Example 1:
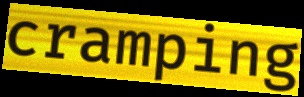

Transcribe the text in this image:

cramping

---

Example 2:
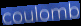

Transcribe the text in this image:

coulomb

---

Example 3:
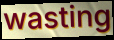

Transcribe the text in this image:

wasting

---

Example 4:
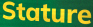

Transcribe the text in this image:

Stature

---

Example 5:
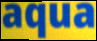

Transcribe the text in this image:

aqua